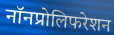
नॉनप्रोलिफरेशन